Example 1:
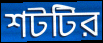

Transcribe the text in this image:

শটটির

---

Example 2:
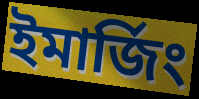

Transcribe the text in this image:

ইমার্জিং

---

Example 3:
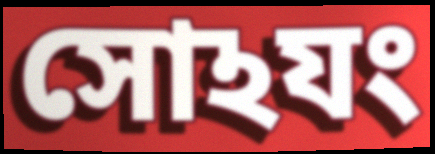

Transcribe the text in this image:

সোঽযং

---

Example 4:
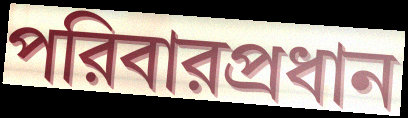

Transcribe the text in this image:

পরিবারপ্রধান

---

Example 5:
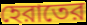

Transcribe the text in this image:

হেরাতের